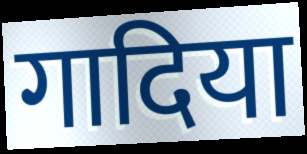
गादिया